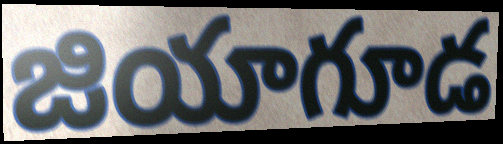
జియాగూడ